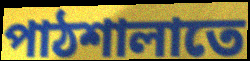
পাঠশালাতে